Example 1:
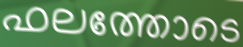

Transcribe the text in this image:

ഫലത്തോടെ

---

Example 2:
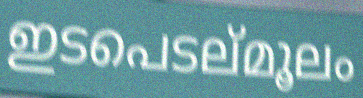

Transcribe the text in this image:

ഇടപെടല്മൂലം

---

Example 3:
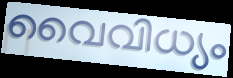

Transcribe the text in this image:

വൈവിധ്യം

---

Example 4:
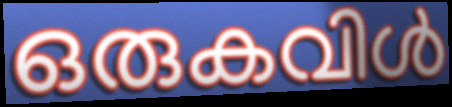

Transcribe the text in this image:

ഒരുകവിൾ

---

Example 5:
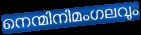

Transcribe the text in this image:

നെന്മിനിമംഗലവും